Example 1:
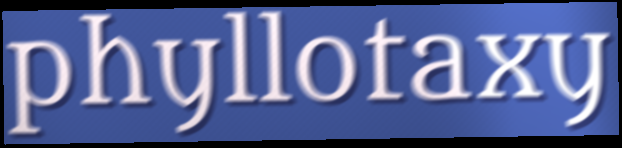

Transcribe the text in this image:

phyllotaxy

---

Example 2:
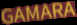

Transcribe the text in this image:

GAMARA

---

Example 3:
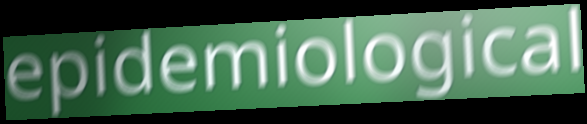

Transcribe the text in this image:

epidemiological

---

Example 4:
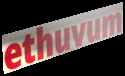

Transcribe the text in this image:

ethuvum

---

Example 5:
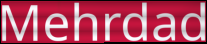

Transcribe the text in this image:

Mehrdad